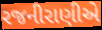
રજનીરાણીએ